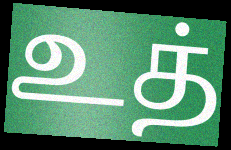
உத்